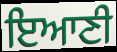
ਇਆਣੀ